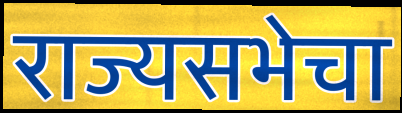
राज्यसभेचा